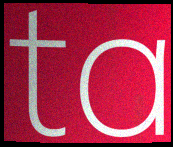
ta